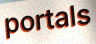
portals